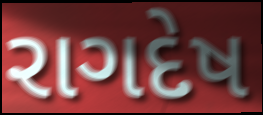
રાગદેષ